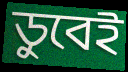
ডুবেই